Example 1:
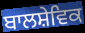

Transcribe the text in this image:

ਬਾਲਸ਼ੇਵਿਕ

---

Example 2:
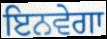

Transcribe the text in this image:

ਇਨਵੇਗਾ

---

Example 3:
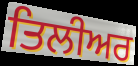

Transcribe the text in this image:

ਤਿਲੀਅਰ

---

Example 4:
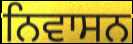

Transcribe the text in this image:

ਨਿਵਾਸਨ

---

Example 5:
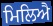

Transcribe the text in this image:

ਮਿਲਿਐ